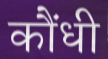
कौंधी